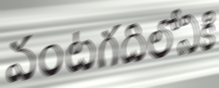
వంటగదిలోనికి